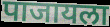
पाजायला